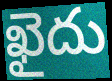
ఖైదు